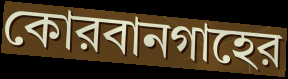
কোরবানগাহের